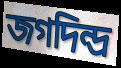
জগদিন্দ্র